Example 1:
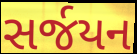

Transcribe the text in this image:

સર્જયન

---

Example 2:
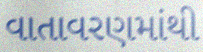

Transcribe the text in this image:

વાતાવરણમાંથી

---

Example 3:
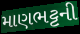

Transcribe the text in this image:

માણભટ્ટની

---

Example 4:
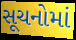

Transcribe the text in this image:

સૂચનોમાં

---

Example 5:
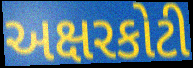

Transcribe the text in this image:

અક્ષરકોટી